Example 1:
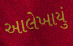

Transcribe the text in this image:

આલેખાયું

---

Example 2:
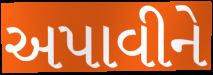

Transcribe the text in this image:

અપાવીને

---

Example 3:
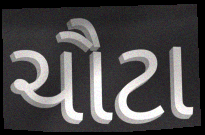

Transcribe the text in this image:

ચૌટા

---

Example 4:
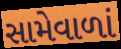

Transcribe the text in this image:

સામેવાળાં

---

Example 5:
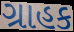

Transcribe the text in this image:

ગ્રાહક